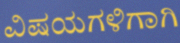
ವಿಷಯಗಳಿಗಾಗಿ